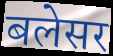
बलेसर